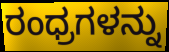
ರಂಧ್ರಗಳನ್ನು